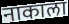
नाकाला